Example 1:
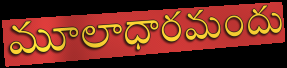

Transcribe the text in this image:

మూలాధారమందు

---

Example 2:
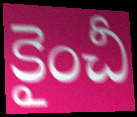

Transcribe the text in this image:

కైంచీ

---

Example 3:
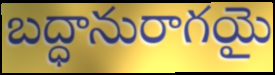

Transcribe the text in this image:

బద్ధానురాగయై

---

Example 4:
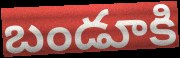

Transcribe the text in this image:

బండూకి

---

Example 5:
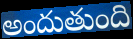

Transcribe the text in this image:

అందుతుంది